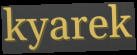
kyarek